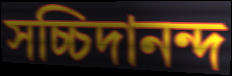
সচ্চিদানন্দ